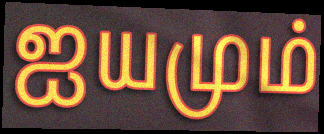
ஐயமும்